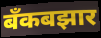
बँकबझार